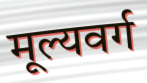
मूल्यवर्ग